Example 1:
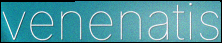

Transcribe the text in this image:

venenatis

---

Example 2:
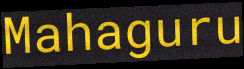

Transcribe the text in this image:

Mahaguru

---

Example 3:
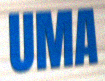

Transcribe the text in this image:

UMA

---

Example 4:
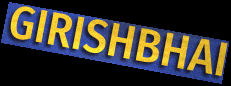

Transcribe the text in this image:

GIRISHBHAI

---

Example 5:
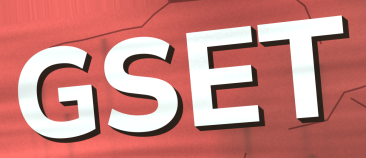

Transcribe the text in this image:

GSET